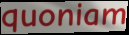
quoniam